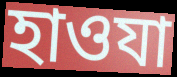
হাওযা